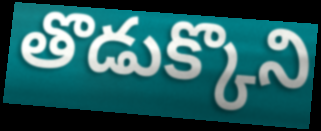
తొడుక్కొని